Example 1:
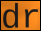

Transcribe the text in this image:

dr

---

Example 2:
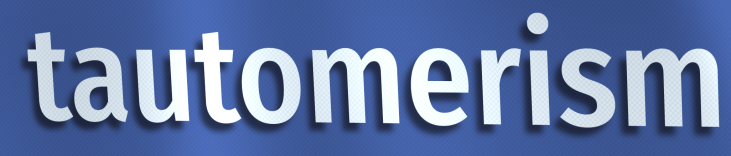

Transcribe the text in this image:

tautomerism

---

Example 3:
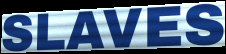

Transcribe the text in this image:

SLAVES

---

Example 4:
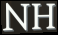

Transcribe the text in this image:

NH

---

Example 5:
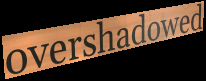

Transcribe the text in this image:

overshadowed